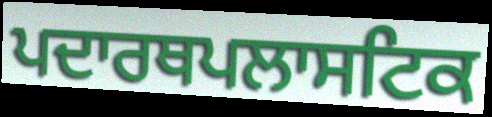
ਪਦਾਰਥਪਲਾਸਟਿਕ